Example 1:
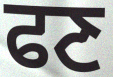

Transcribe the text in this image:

ਫਣ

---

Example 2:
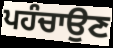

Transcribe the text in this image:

ਪਹੰਚਾਉਣ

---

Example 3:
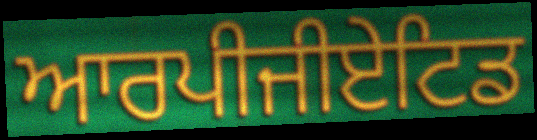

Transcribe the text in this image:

ਆਰਪੀਜੀਏਟਿਡ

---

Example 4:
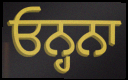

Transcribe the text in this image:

ਓਨ੍ਹਨਾ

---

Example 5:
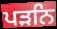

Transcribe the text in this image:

ਪੜਨਿ